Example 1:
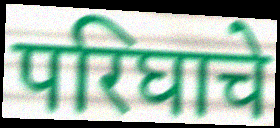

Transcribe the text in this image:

परिघाचे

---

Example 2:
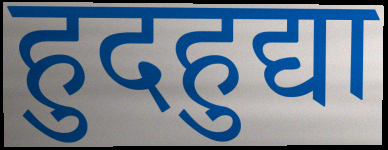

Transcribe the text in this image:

हुदहुद्या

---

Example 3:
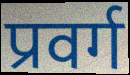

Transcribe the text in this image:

प्रवर्ग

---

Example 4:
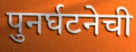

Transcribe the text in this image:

पुनर्घटनेची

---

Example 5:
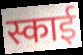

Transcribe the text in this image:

स्काई